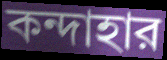
কন্দাহার